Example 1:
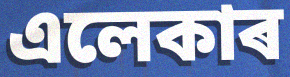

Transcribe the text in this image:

এলেকাৰ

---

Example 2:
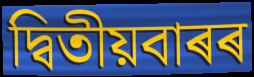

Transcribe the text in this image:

দ্বিতীয়বাৰৰ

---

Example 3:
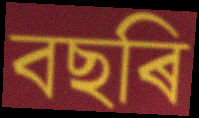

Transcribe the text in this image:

বছৰি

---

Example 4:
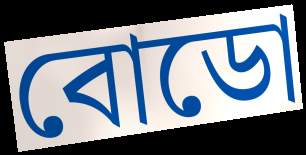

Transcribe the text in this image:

বোডো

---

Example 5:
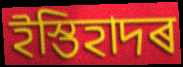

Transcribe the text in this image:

ইস্তিহাদৰ